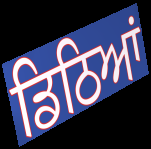
ਡਿਠਿਆਂ